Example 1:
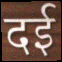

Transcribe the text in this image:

दई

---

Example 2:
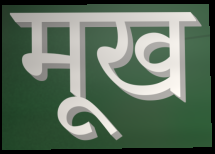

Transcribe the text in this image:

मूख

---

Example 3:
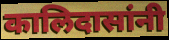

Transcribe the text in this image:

कालिदासांनी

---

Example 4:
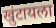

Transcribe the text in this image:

खुंटायला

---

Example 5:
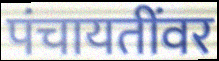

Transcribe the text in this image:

पंचायतींवर